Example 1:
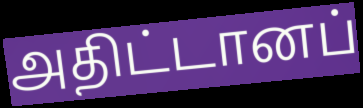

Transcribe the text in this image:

அதிட்டானப்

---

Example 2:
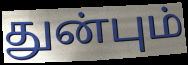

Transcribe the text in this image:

துன்பும்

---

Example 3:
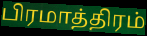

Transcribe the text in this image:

பிரமாத்திரம்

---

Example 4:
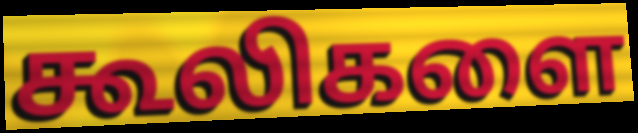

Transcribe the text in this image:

கூலிகளை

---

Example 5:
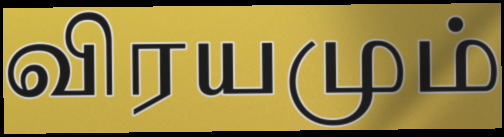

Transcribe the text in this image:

விரயமும்